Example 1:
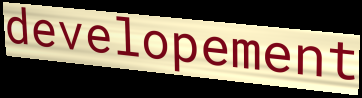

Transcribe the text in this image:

developement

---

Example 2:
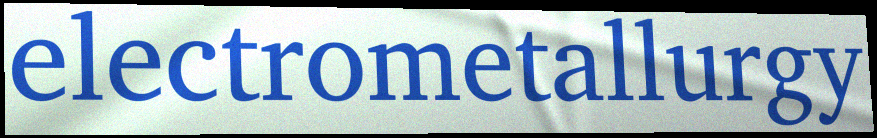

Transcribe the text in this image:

electrometallurgy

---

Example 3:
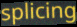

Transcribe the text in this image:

splicing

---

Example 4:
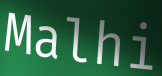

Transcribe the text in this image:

Malhi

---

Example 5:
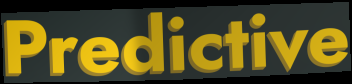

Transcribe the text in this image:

Predictive